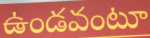
ఉండవంటూ